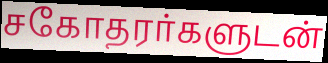
சகோதரர்களுடன்